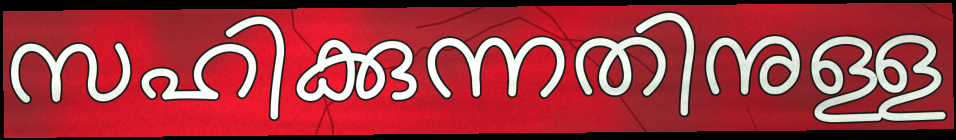
സഹിക്കുന്നതിനുള്ള